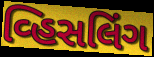
વ્હિસલિંગ